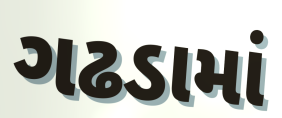
ગઢડામાં